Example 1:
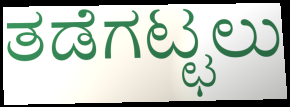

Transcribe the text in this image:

ತಡೆಗಟ್ಟಲು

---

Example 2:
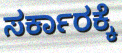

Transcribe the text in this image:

ಸರ್ಕಾರಕ್ಕೆ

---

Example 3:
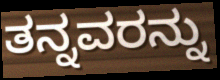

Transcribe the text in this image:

ತನ್ನವರನ್ನು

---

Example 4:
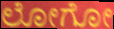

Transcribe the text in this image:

ಲೋಗೋ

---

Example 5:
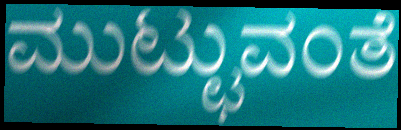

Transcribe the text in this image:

ಮುಟ್ಟುವಂತೆ